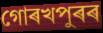
গোৰখপুৰৰ